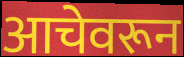
आचेवरून